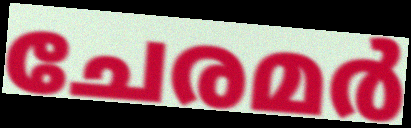
ചേരമർ